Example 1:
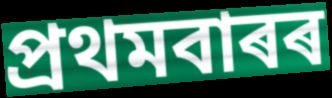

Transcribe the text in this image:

প্ৰথমবাৰৰ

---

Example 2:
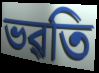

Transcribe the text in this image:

ভৱতি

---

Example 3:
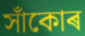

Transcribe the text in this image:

সাঁকোৰ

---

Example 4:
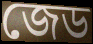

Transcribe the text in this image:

জেড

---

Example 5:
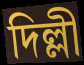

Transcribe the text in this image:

দিল্লী